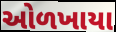
ઓળખાયા